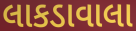
લાકડાવાલા